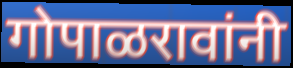
गोपाळरावांनी